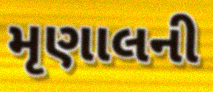
મૃણાલની